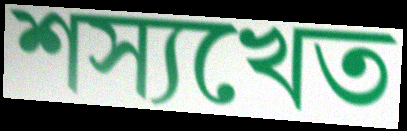
শস্যখেত